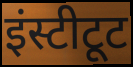
इंस्टीटूट